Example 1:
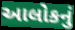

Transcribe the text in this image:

આલોકનું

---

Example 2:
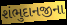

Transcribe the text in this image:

શંભુદાનજીના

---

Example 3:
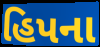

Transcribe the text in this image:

હિપના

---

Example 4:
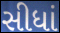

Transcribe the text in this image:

સીધાં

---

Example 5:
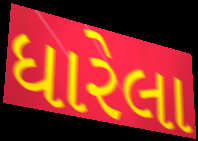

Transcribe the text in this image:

ધારેલા